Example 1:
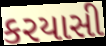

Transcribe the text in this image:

કરયાસી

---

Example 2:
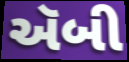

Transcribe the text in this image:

ઍબી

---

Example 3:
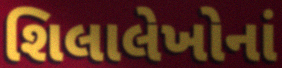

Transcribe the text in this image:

શિલાલેખોનાં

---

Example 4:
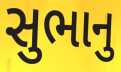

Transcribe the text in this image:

સુભાનુ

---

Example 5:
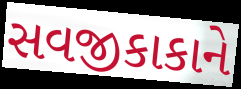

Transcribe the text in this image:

સવજીકાકાને